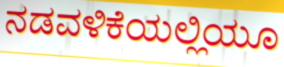
ನಡವಳಿಕೆಯಲ್ಲಿಯೂ